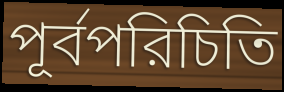
পূর্বপরিচিতি